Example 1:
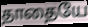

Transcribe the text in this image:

தாதையே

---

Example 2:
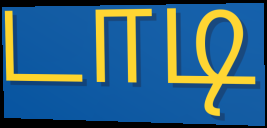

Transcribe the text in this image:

டாடி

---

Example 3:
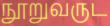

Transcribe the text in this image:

நூறுவருட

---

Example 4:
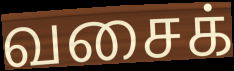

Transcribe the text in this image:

வசைக்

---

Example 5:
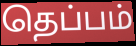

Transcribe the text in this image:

தெப்பம்